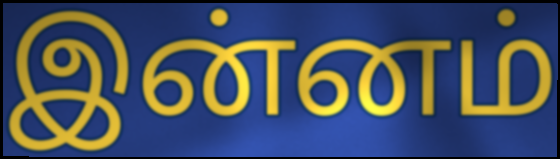
இன்னம்